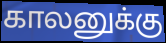
காலனுக்கு